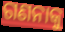
ଗଣନାକୁ